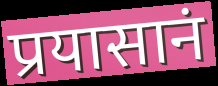
प्रयासानं